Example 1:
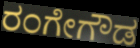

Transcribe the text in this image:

ರಂಗೇಗೌಡ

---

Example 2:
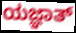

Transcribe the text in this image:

ಯಜ್ಞಾತ್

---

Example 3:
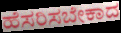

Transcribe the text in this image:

ಹೆಸರಿಸಬೇಕಾದ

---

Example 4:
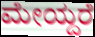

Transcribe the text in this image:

ಮೇಯ್ದರೆ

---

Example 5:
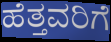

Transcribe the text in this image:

ಹೆತ್ತವರಿಗೆ